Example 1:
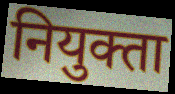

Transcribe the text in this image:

नियुक्ता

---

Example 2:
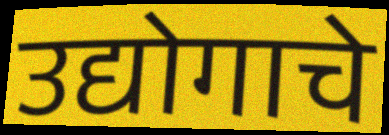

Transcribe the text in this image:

उद्योगाचे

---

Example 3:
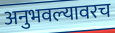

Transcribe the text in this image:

अनुभवल्यावरच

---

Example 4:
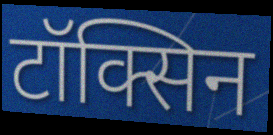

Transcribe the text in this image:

टॉक्सिन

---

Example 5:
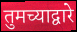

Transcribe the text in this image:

तुमच्याद्वारे